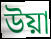
উয়া